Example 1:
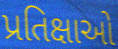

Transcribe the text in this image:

પ્રતિક્ષાઓ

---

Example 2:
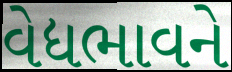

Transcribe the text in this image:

વેદ્યભાવને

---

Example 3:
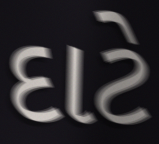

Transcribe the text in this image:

દાટે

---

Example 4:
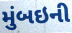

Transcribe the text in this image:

મુંબઇની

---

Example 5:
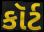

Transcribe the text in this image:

કૉર્ટ